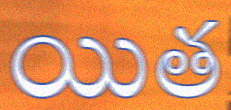
యిత